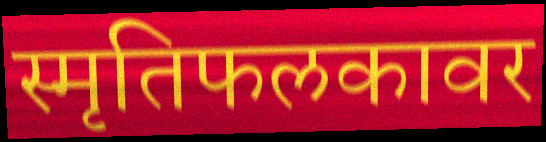
स्मृतिफलकावर